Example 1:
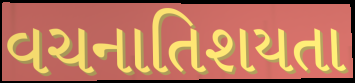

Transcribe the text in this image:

વચનાતિશયતા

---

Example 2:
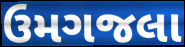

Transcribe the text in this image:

ઉમગજલા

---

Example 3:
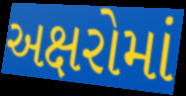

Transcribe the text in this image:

અક્ષરોમાં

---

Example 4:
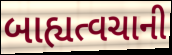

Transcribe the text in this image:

બાહ્યત્વચાની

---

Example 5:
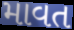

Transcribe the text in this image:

માવત